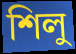
শিলু